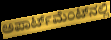
ಅಪಾರ್ಟ್‌ಮೆಂಟ್‌ನಲ್ಲಿ